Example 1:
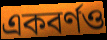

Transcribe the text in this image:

একবর্ণও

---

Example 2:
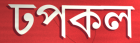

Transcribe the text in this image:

ঢপকল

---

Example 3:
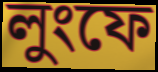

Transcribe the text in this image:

লুংফে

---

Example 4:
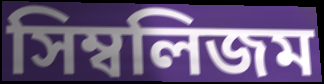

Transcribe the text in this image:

সিম্বলিজম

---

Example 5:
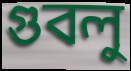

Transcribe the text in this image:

গুবলু